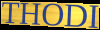
THODI